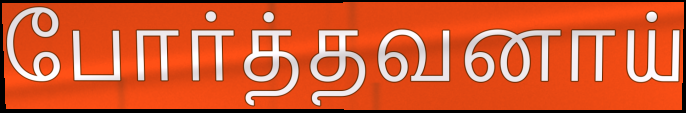
போர்த்தவனாய்